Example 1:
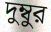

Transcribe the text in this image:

দুম্বুর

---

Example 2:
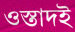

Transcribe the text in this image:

ওস্তাদই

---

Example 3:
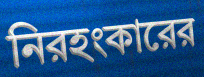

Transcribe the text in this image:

নিরহংকারের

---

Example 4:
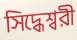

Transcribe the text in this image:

সিদ্ধেশ্বরী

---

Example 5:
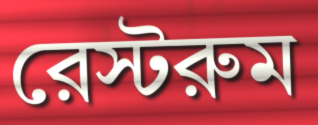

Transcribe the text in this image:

রেস্টরুম